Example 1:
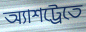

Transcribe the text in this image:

অ্যাশট্রেতে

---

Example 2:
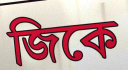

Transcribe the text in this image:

জিকে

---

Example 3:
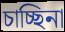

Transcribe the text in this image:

চাচ্ছিনা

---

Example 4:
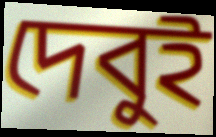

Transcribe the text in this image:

দেবুই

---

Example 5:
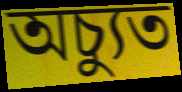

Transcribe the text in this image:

অচ্যুত